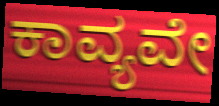
ಕಾವ್ಯವೇ